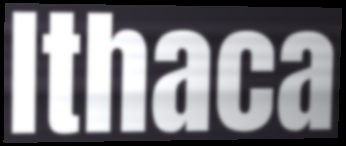
Ithaca